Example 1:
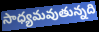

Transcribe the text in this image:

సాధ్యమవుతున్నది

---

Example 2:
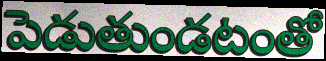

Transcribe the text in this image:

పెడుతుండటంతో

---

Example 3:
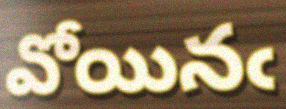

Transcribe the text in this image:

వోయినఁ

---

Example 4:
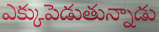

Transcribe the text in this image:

ఎక్కుపెడుతున్నాడు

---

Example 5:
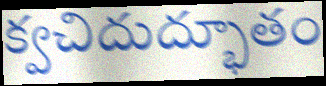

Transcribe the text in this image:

క్వచిదుద్భూతం